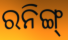
ରନିଙ୍ଗ୍